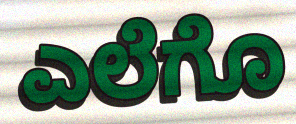
ಎಲೆಗೊ